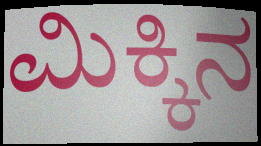
ಮಿಕ್ಕಿನ